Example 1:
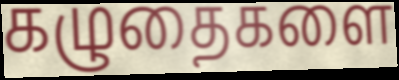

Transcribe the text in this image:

கழுதைகளை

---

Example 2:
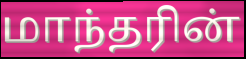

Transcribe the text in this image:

மாந்தரின்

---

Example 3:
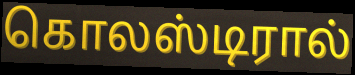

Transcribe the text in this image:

கொலஸ்டிரால்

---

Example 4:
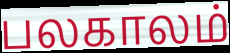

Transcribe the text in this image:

பலகாலம்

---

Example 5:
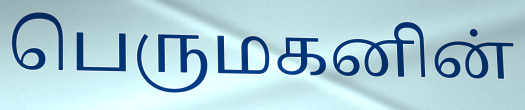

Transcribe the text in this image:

பெருமகனின்